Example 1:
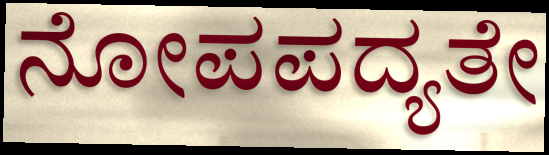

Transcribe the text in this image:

ನೋಪಪದ್ಯತೇ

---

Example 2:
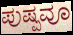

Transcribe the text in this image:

ಪುಷ್ಪವೂ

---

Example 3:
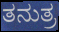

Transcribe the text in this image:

ತನುತ್ರ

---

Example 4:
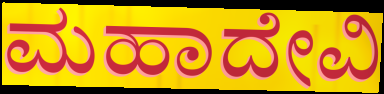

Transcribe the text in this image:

ಮಹಾದೇವಿ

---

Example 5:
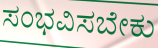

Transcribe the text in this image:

ಸಂಭವಿಸಬೇಕು